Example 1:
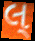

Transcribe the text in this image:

લ્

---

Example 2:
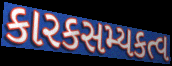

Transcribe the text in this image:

કારકસમ્યકત્વ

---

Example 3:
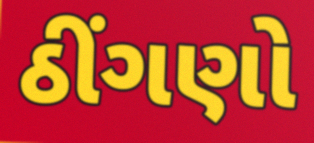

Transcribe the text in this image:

ઠીંગણો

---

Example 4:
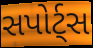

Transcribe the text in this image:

સપોર્ટ્સ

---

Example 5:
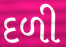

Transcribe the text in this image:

દળી